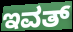
ಇವತ್